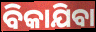
ବିକାଯିବା